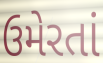
ઉમેરતાં